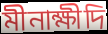
মীনাক্ষীদি